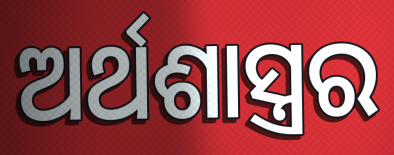
ଅର୍ଥଶାସ୍ତ୍ରର